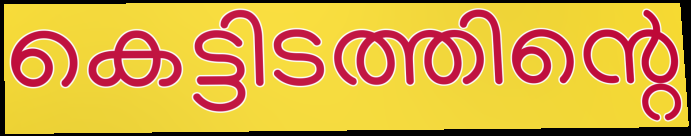
കെട്ടിടത്തിന്റെ